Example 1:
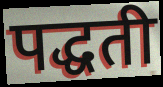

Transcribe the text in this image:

पद्धती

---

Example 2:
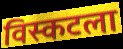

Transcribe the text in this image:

विस्कटला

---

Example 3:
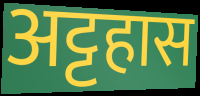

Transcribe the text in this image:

अट्टहास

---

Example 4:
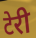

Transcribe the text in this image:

टेरी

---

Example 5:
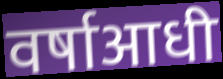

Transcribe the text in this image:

वर्षाआधी